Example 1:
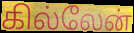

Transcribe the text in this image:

கில்லேன்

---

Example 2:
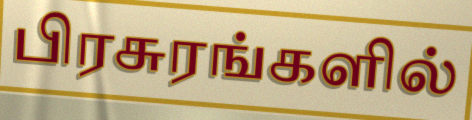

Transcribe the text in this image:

பிரசுரங்களில்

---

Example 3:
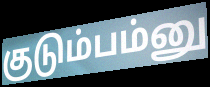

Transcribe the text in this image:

குடும்பம்னு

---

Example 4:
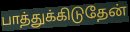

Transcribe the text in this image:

பாத்துக்கிடுதேன்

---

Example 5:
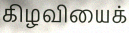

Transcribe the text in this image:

கிழவியைக்